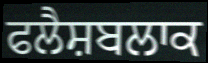
ਫਲੈਸ਼ਬਲਾਕ